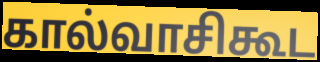
கால்வாசிகூட